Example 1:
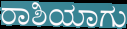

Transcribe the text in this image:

ರಾಶಿಯಾಗು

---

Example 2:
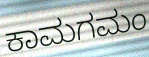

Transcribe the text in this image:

ಕಾಮಗಮಂ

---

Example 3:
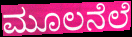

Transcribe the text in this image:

ಮೂಲನೆಲೆ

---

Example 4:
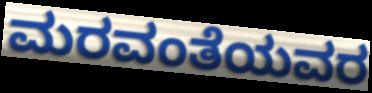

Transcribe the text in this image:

ಮರವಂತೆಯವರ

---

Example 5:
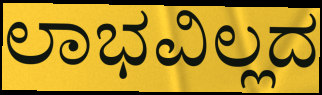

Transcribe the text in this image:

ಲಾಭವಿಲ್ಲದ